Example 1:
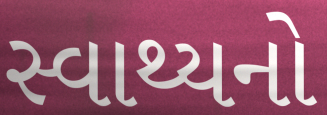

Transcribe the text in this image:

સ્વાથ્યનો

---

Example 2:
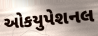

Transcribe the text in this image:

ઓકયુપેશનલ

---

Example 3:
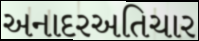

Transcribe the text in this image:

અનાદરઅતિચાર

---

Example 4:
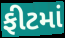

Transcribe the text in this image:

ફીટમાં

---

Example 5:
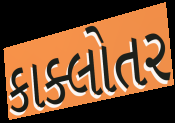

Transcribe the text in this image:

કાક્લોતર